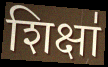
शिक्षा॑